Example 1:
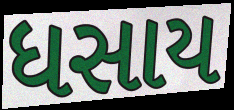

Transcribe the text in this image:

ધસાય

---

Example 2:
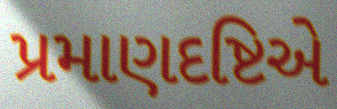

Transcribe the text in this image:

પ્રમાણદષ્ટિએ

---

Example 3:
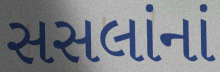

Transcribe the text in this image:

સસલાંનાં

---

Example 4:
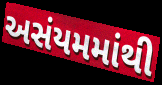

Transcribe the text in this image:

અસંયમમાંથી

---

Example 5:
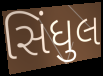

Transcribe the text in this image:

સિંધુલ